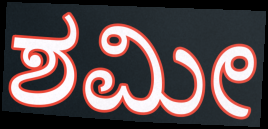
ಶಮೀ